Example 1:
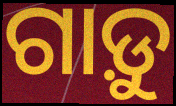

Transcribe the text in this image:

ଗାଡ଼ୁ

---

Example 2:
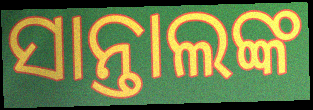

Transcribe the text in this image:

ସାନ୍ତାଲଙ୍କ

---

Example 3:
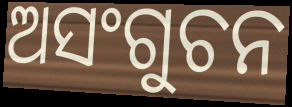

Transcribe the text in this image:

ଅସଂଗୁଚନ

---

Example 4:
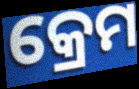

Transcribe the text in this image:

କ୍ରେମ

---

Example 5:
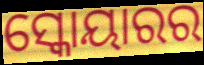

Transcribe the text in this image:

ସ୍କୋୟାରର